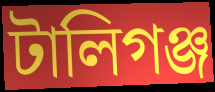
টালিগঞ্জ